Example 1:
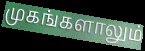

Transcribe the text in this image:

முகங்களாலும்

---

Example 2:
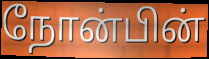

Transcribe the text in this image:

நோன்பின்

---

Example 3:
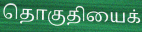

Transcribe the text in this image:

தொகுதியைக்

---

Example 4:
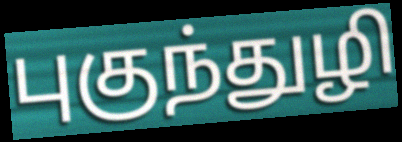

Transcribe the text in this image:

புகுந்துழி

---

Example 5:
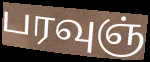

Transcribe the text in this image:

பரவுஞ்